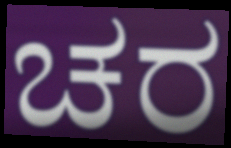
ಚರ